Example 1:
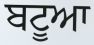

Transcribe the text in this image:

ਬਟੂਆ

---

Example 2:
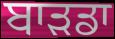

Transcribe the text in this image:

ਬਾੜਡਾ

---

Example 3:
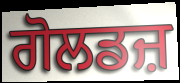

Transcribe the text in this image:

ਗੋਲਡਜ਼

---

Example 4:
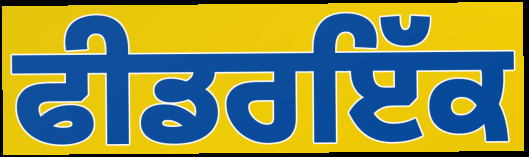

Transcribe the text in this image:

ਫੀਡਰਇੱਕ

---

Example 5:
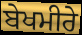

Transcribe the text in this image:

ਬੇਖਮੀਰੇ